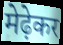
मेढ़ेकर